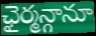
ఛైర్మన్గానూ